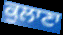
ਕੁਲਾਣਾ